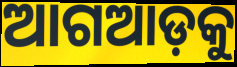
ଆଗଆଡ଼କୁ